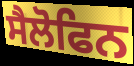
ਸੈਲੋਫਿਨ